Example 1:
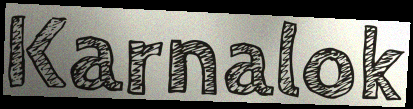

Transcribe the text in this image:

Karnalok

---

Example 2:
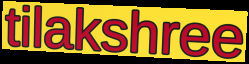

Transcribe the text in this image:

tilakshree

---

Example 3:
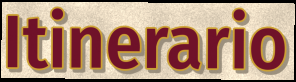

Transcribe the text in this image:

Itinerario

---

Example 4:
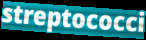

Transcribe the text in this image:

streptococci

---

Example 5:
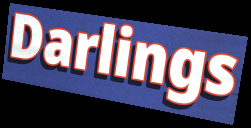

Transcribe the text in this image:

Darlings